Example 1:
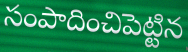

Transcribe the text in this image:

సంపాదించిపెట్టిన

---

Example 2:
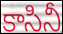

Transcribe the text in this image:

కాసినీ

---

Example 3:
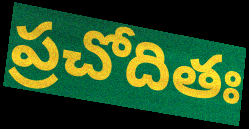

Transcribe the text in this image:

ప్రచోదితః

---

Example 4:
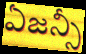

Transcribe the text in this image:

ఏజన్సీ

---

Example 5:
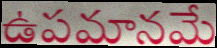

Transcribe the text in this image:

ఉపమానమే